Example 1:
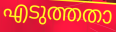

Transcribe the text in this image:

എടുത്തതാ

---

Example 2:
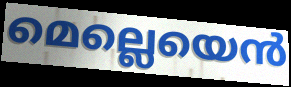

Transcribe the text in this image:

മെല്ലെയെൻ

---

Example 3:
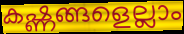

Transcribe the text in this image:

കഷ്ണങ്ങളെല്ലാം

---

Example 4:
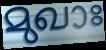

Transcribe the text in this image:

മുഖാഃ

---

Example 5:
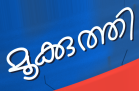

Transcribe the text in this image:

മൂക്കുത്തി